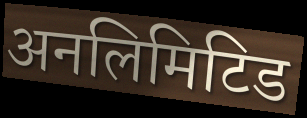
अनलिमिटिड